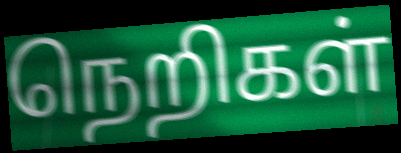
நெறிகள்